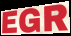
EGR